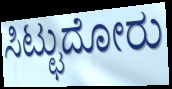
ಸಿಟ್ಟುದೋರು